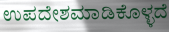
ಉಪದೇಶಮಾಡಿಕೊಳ್ಳದೆ